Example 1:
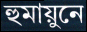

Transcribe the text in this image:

হুমায়ুনে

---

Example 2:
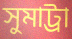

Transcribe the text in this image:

সুমাট্ৰা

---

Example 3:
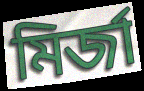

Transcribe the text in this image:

মিৰ্জা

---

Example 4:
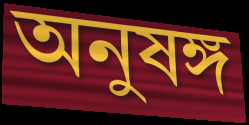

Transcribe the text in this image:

অনুষঙ্গ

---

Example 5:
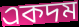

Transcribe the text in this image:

একদম